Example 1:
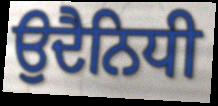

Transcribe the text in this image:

ਉਦੈਨਿਧੀ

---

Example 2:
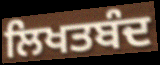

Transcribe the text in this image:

ਲਿਖਤਬੰਦ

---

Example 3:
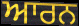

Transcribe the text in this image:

ਆਰਨ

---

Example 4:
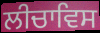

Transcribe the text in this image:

ਲੀਚਾਵਿਸ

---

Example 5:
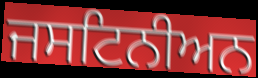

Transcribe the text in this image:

ਜਸਟਿਨੀਅਨ